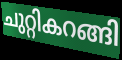
ചുറ്റികറങ്ങി